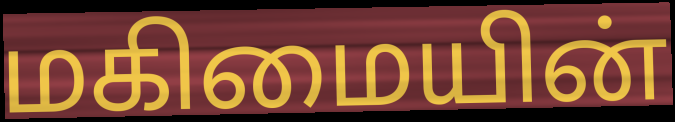
மகிமையின்